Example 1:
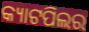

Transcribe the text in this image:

କ୍ୟାଟପିଲର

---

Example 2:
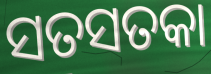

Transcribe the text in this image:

ସତସତକା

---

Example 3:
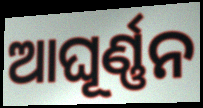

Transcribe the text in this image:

ଆଘୂର୍ଣ୍ଣନ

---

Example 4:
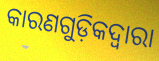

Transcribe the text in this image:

କାରଣଗୁଡ଼ିକଦ୍ବାରା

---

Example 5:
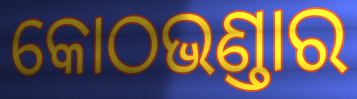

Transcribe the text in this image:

କୋଠଭଣ୍ଡାର